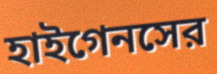
হাইগেনসের